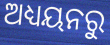
ଅଧ୍ୟୟନରୁ